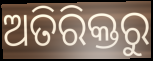
ଅତିରିକ୍ତରୁ